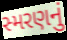
સ્મરણનું